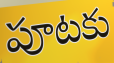
పూటకు